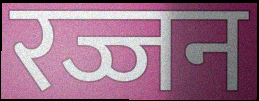
रज्जन